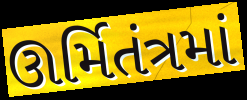
ઊર્મિતંત્રમાં